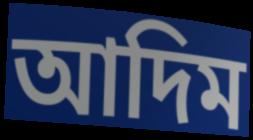
আদিম